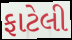
ફાટેલી